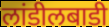
लांडीलबाडी